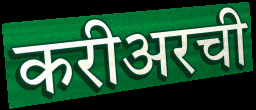
करीअरची